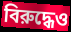
বিরুদ্ধেও